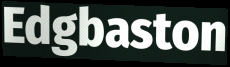
Edgbaston